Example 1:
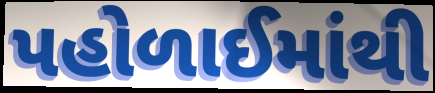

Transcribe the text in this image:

પહોળાઈમાંથી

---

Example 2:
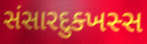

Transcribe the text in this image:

સંસારદુક્ખસ્સ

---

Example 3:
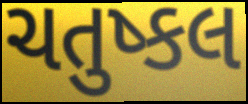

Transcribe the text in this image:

ચતુષ્કલ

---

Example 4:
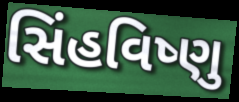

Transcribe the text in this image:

સિંહવિષ્ણુ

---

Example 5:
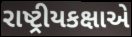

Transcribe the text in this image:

રાષ્ટ્રીયકક્ષાએ